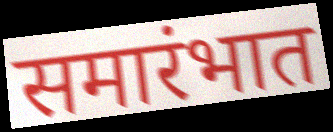
समारंभात